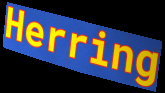
Herring